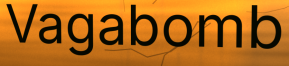
Vagabomb